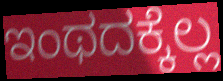
ಇಂಥದಕ್ಕೆಲ್ಲ